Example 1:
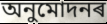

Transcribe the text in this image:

অনুমোদনৰ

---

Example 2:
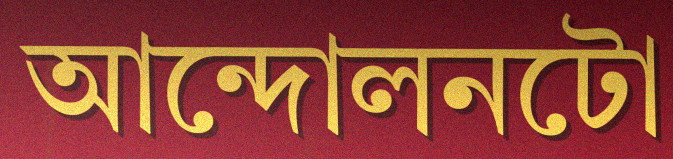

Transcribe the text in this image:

আন্দোলনটো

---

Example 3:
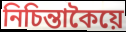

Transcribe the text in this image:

নিচিন্তাকৈয়ে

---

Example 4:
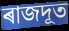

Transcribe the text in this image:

ৰাজদূত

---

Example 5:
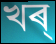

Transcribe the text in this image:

খৰ্